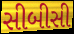
સીબીસી